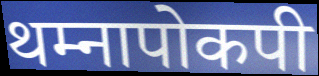
थम्नापोकपी